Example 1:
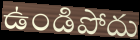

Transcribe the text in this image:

ఉండిపోదు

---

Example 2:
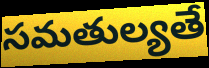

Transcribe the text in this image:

సమతుల్యతే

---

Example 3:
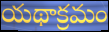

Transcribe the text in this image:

యథాక్రమం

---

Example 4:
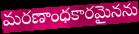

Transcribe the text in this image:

మరణాంధకారమైనను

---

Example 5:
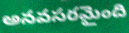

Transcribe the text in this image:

అనవసరమైంది